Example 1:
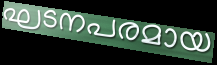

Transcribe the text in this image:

ഘടനപരമായ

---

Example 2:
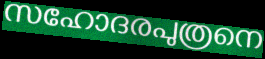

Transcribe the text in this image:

സഹോദരപുത്രനെ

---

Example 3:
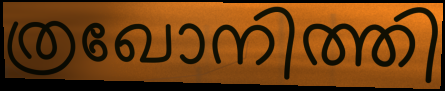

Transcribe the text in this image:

ത്രഖോനിത്തി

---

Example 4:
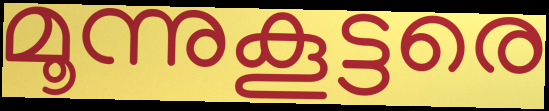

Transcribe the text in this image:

മൂന്നുകൂട്ടരെ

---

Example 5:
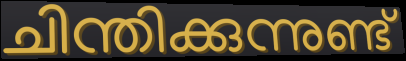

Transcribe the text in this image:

ചിന്തിക്കുന്നുണ്ട്